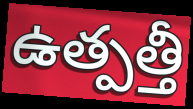
ఉత్పత్తీ